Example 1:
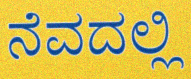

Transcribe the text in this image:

ನೆವದಲ್ಲಿ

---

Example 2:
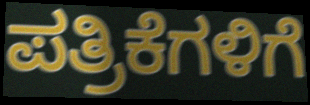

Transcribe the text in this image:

ಪತ್ರಿಕೆಗಳಿಗೆ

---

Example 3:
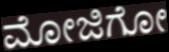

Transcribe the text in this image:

ಮೋಜಿಗೋ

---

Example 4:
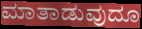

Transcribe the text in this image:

ಮಾತಾಡುವುದೂ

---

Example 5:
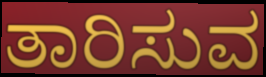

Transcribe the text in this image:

ತಾರಿಸುವ